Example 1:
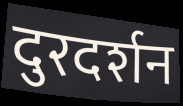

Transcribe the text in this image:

दुरदर्शन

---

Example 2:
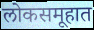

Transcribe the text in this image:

लोकसमूहात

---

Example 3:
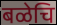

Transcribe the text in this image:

बळेचि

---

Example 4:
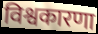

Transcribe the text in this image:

विश्वकारणा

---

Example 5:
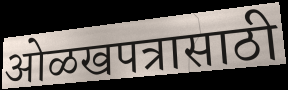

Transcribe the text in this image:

ओळखपत्रासाठी